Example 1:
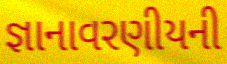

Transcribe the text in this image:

જ્ઞાનાવરણીયની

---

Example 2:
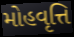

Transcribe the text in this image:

મોહવૃત્તિ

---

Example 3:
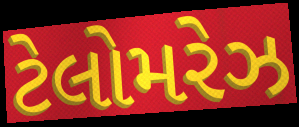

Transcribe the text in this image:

ટેલોમરેઝ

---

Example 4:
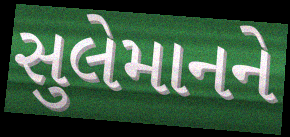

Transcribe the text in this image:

સુલેમાનને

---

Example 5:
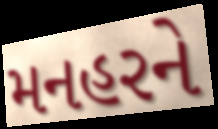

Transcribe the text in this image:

મનહરને